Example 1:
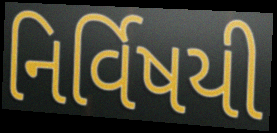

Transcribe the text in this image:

નિર્વિષયી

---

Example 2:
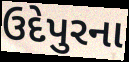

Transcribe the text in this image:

ઉદેપુરના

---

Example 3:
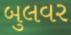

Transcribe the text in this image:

બુલવર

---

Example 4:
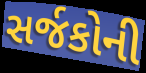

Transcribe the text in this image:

સર્જકોની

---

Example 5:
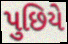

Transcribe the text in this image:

પુછિયે